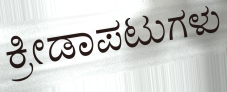
ಕ್ರೀಡಾಪಟುಗಳು